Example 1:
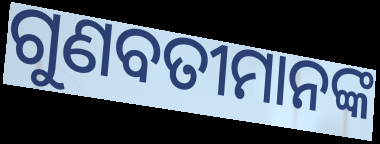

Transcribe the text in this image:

ଗୁଣବତୀମାନଙ୍କ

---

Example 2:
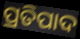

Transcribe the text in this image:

ପ୍ରତିପାଦ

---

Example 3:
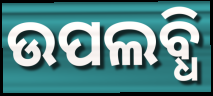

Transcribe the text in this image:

ଉପଲବ୍ଧି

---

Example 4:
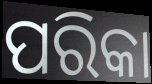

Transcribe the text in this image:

ପରିକା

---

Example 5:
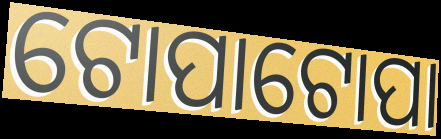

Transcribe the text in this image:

ଟୋପାଟୋପା